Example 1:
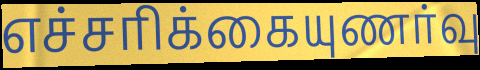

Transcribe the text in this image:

எச்சரிக்கையுணர்வு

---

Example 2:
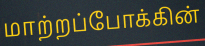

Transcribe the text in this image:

மாற்றப்போக்கின்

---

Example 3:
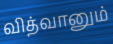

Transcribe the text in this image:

வித்வானும்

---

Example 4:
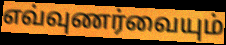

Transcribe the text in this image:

எவ்வுணர்வையும்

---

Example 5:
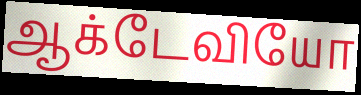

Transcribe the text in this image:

ஆக்டேவியோ